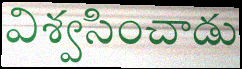
విశ్వసించాడు